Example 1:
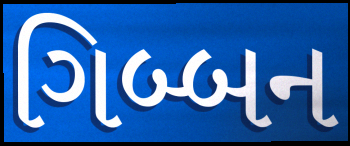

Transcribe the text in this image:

ગિબ્બન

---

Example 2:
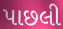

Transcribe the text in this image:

પાછલી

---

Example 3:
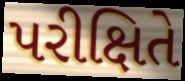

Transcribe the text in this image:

પરીક્ષિતે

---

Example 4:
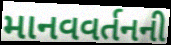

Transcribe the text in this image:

માનવવર્તનની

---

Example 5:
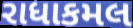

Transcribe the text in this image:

રાધાકમલ